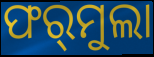
ଫର୍‌ମୁଲା